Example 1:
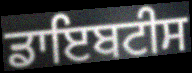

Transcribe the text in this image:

ਡਾਇਬਟੀਸ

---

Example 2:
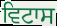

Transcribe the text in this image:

ਵਿਟਾਸ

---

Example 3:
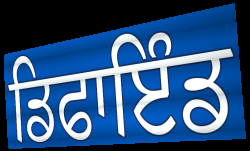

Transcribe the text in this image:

ਡਿਫਾਇੰਡ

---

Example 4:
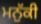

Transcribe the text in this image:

ਮਨੁੱਕੀ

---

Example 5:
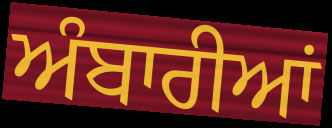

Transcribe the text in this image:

ਅੰਬਾਰੀਆਂ